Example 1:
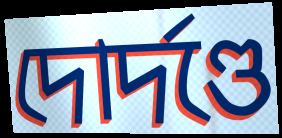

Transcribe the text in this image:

দোর্দণ্ডে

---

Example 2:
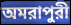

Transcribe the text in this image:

অমরাপুরী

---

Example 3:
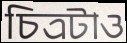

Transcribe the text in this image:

চিত্রটাও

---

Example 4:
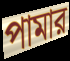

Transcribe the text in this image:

পামার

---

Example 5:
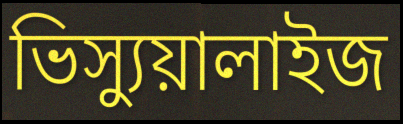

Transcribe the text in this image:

ভিস্যুয়ালাইজ